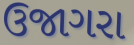
ઉજાગરા